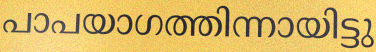
പാപയാഗത്തിന്നായിട്ടു